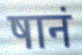
षानं